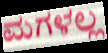
ಮಗಳಲ್ಲ